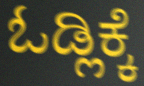
ಓಡ್ಲಿಕ್ಕೆ